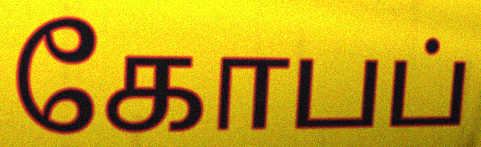
கோபப்